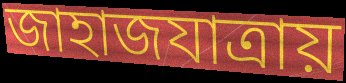
জাহাজযাত্রায়